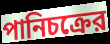
পানিচক্রের